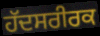
ਹੱਦਸਰੀਰਕ